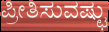
ಪ್ರೀತಿಸುವಷ್ಟು